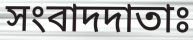
সংবাদদাতাঃ